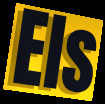
Els